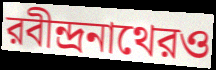
রবীন্দ্রনাথেরও